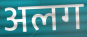
अलग